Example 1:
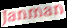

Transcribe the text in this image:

Janman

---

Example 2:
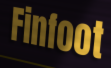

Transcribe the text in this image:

Finfoot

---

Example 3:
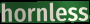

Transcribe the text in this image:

hornless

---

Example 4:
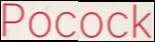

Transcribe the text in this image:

Pocock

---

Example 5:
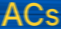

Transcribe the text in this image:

ACs